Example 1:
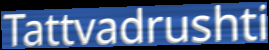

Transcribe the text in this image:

Tattvadrushti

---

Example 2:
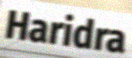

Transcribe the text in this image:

Haridra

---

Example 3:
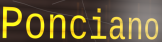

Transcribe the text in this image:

Ponciano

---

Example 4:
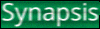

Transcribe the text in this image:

Synapsis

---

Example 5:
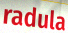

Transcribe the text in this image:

radula